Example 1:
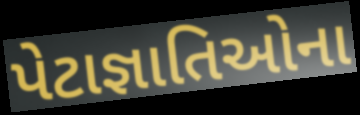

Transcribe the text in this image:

પેટાજ્ઞાતિઓના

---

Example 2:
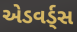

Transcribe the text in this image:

એડવર્ડ્સ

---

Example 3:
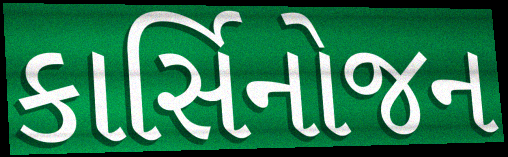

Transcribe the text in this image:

કાર્સિનોજન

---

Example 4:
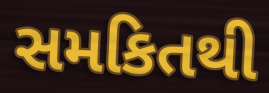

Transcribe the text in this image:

સમકિતથી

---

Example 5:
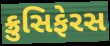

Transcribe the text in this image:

ક્રુસિફેરસ